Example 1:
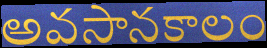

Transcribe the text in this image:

అవసానకాలం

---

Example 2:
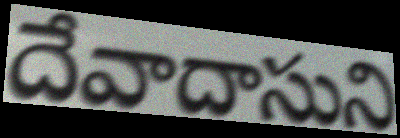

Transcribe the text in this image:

దేవాదాసుని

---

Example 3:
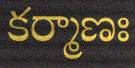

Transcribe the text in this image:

కర్మాణః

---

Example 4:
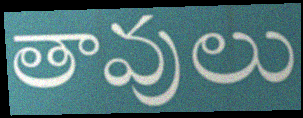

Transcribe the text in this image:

తావులు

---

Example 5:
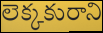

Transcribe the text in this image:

లెక్కకురాని